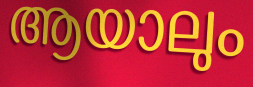
ആയാലും